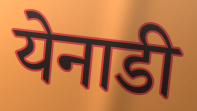
येनाडी